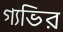
গ্যভির